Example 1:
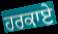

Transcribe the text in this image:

ਹਰਕਾਏ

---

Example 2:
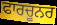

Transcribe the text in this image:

ਫਾਰਚੂਨਰ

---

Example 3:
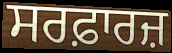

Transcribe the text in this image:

ਸਰਫ਼ਾਰਜ਼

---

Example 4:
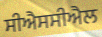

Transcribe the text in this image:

ਸੀਐਸਸੀਐਲ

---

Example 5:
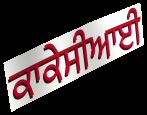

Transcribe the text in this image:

ਕਾਕੇਸੀਆਈ